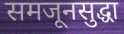
समजूनसुद्धा